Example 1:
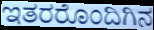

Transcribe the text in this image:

ಇತರರೊಂದಿಗಿನ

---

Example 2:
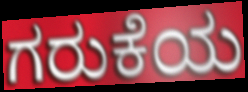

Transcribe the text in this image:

ಗರುಕೆಯ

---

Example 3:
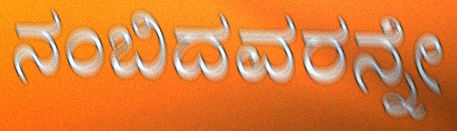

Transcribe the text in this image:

ನಂಬಿದವರನ್ನೇ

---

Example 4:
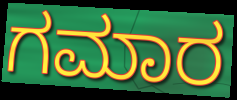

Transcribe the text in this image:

ಗಮಾರ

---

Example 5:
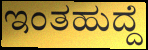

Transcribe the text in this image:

ಇಂತಹುದ್ದೆ